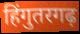
हिंगुतरगढ़